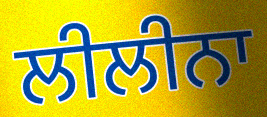
ਲੀਲੀਨਾ